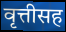
वृत्तीसह